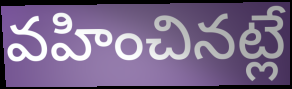
వహించినట్లే